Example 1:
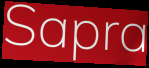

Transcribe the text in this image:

Sapra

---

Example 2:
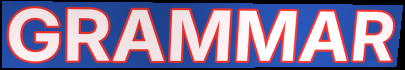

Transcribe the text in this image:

GRAMMAR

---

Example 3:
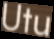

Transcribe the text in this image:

Utu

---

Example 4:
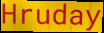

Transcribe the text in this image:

Hruday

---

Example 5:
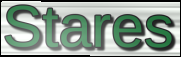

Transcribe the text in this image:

Stares